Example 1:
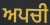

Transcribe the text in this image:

ਅਪਚੀ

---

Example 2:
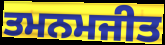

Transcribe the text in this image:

ਤਮਨਮਜੀਤ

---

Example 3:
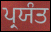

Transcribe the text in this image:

ਪ੍ਰਯੰਤ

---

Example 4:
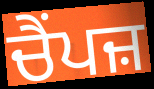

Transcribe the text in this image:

ਚੈਂਪਜ਼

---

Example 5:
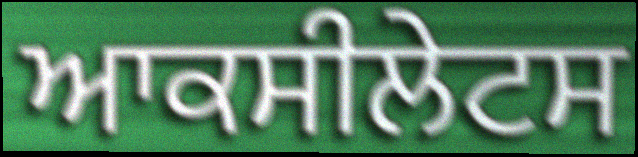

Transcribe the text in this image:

ਆਕਸੀਲੇਟਸ